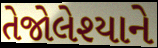
તેજોલેશ્યાને